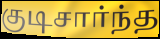
குடிசார்ந்த